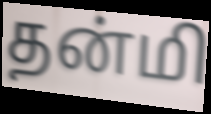
தன்மி